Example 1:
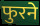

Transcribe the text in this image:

फुरने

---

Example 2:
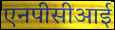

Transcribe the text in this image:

एनपीसीआई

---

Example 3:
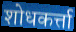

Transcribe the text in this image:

शोधकर्त्ता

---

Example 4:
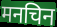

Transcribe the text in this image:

मनचिन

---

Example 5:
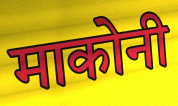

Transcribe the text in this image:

माकोनी